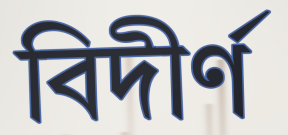
বিদীর্ণ